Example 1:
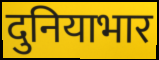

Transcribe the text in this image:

दुनियाभार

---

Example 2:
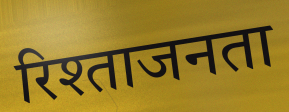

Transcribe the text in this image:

रिश्ताजनता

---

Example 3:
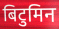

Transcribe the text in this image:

बिटुमिन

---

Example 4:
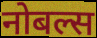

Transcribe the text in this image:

नोबल्स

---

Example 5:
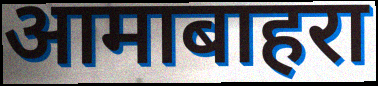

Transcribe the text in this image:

आमाबाहरा